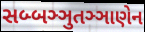
સબ્બઞ્ઞુતઞ્ઞાણેન